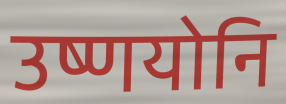
उष्णयोनि